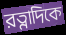
রত্নাদিকে